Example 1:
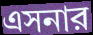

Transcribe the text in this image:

এসনার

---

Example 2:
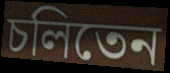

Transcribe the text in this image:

চলিতেন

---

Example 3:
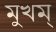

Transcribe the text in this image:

মুখম্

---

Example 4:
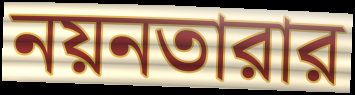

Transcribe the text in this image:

নয়নতারার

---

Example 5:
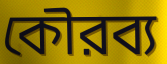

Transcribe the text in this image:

কৌরব্য